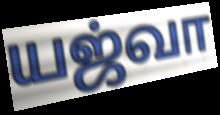
யஜ்வா